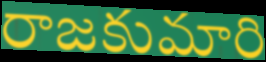
రాజకుమారి